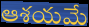
ఆశయమే